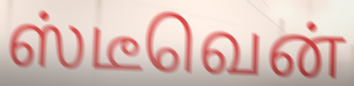
ஸ்டீவென்